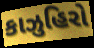
કાઝુહિરો